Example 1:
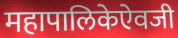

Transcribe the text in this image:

महापालिकेऐवजी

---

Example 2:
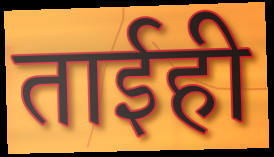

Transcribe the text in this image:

ताईही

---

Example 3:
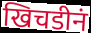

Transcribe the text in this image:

खिचडीनं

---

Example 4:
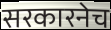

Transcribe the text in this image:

सरकारनेच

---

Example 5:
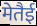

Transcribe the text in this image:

मेतैई